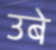
उबे